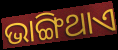
ଭାଙ୍ଗିଥାଏ